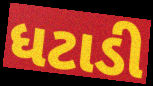
ધટાડી